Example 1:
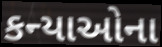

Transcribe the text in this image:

કન્યાઓના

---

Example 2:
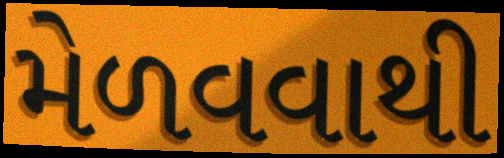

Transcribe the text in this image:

મેળવવાથી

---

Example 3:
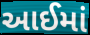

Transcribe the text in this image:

આઈમાં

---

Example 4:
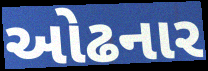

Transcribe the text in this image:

ઓઢનાર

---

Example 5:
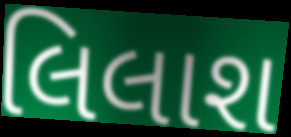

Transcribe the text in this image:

લિલાશ